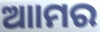
ଆାମର